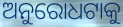
ଅନୁରୋଧଟାକୁ